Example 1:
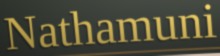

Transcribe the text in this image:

Nathamuni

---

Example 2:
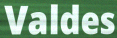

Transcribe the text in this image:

Valdes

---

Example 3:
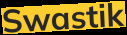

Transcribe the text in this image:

Swastik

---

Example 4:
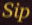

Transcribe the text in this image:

Sip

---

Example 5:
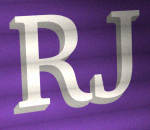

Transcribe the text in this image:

RJ